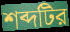
শব্দটির